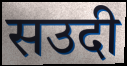
सउदी